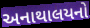
અનાથાલયનો